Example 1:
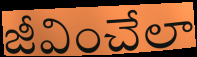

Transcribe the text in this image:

జీవించేలా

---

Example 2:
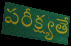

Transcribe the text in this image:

పరీక్ష్యతే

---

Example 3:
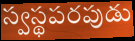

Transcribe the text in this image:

స్వస్థపరపుడు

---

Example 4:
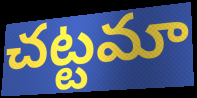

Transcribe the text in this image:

చట్టమా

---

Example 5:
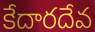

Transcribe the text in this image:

కేదారదేవ